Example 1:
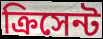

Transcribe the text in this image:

ক্রিসেন্ট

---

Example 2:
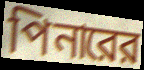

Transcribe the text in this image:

পিনারের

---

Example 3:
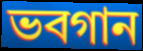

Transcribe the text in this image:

ভবগান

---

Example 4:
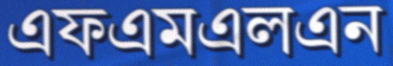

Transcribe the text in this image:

এফএমএলএন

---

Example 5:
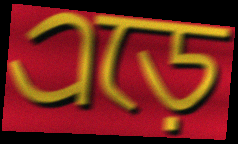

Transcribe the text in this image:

এড়ে